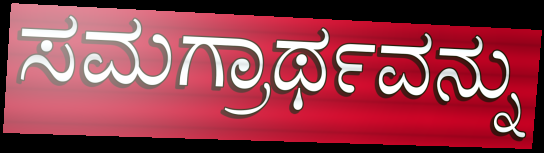
ಸಮಗ್ರಾರ್ಥವನ್ನು